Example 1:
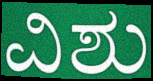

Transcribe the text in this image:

ವಿಶು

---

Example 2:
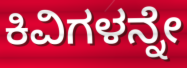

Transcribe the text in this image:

ಕಿವಿಗಳನ್ನೇ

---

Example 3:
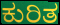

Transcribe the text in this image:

ಕುರಿತ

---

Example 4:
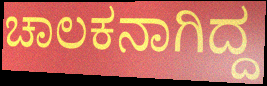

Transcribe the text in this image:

ಚಾಲಕನಾಗಿದ್ದ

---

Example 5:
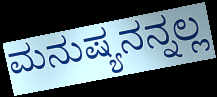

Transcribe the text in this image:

ಮನುಷ್ಯನನ್ನಲ್ಲ